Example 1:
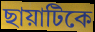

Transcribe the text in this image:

ছায়াটিকে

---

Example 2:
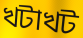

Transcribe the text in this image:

খটাখট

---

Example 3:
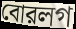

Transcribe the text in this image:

বোরলগ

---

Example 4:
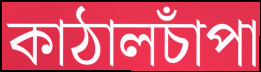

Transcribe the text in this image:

কাঠালচাঁপা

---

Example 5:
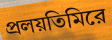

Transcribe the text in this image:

প্রলয়তিমিরে